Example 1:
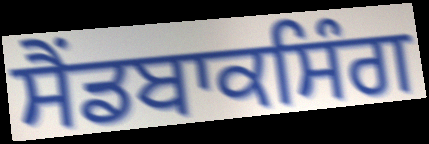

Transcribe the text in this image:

ਸੈਂਡਬਾਕਸਿੰਗ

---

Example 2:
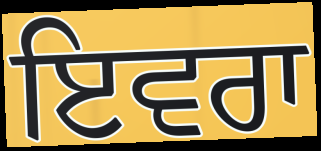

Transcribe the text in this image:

ਇਵਰਾ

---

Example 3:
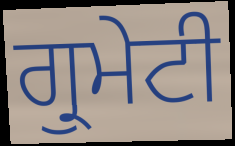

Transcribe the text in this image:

ਗ੍ਰੁਮੇਟੀ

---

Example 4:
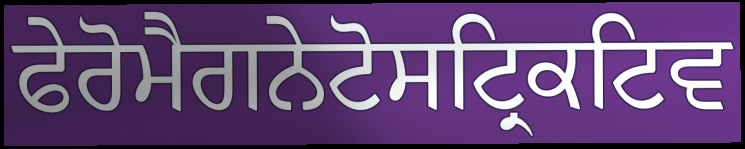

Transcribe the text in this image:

ਫੇਰੋਮੈਗਨੇਟੋਸਟ੍ਰਿਕਟਿਵ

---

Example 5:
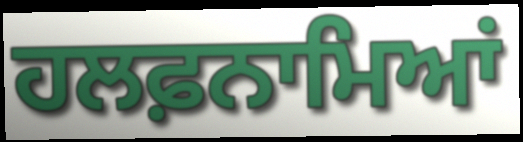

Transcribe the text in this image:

ਹਲਫ਼ਨਾਮਿਆਂ